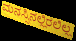
ಮನಸ್ಸಿನಲ್ಲಿರಲಿಲ್ಲ